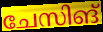
ചേസിങ്